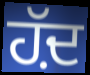
ਹ਼ੱਦ